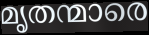
മൃതന്മാരെ